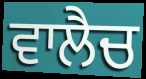
ਵਾਲੈਚ